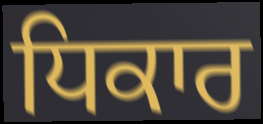
ਧਿਕਾਰ